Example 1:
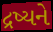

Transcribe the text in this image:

દ્રષ્યને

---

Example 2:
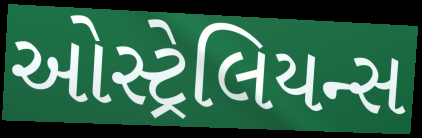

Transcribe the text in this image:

ઓસ્ટ્રેલિયન્સ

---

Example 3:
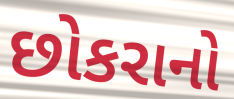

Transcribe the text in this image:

છોકરાનો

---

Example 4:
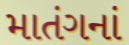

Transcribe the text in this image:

માતંગનાં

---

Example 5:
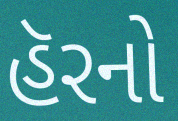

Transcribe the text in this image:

હૅરનો